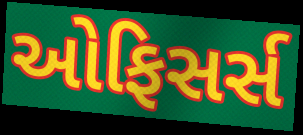
ઓફિસર્સ